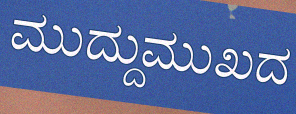
ಮುದ್ದುಮುಖದ